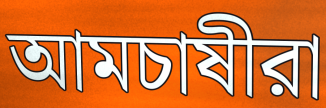
আমচাষীরা